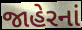
જાહેરનાં